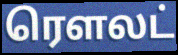
ரௌலட்